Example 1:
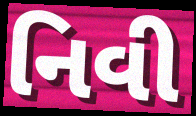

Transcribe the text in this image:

નિવી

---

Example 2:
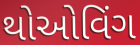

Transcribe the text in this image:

થોઓવિંગ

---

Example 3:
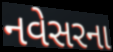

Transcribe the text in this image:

નવેસરના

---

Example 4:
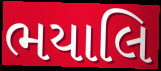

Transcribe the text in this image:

ભયાલિ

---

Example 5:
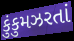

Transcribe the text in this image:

કુંકુમઝરતાં